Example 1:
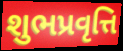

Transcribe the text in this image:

શુભપ્રવૃત્તિ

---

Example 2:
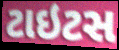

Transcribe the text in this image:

ટાઇટસ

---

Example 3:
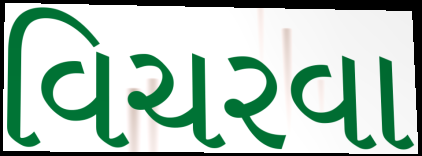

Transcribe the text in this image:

વિચરવા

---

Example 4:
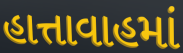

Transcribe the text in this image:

હાત્તાવાહમાં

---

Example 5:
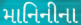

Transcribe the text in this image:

માનિનીના